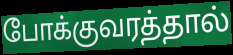
போக்குவரத்தால்